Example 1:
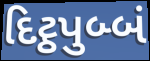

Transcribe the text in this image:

દિટ્ઠપુબ્બં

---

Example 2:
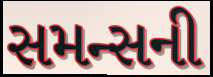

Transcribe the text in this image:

સમન્સની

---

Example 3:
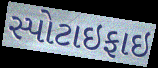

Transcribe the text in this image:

સ્પોટાઇફાઇ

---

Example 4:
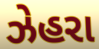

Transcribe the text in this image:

ઝેહરા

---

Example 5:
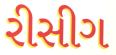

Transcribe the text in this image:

રીસીગ